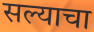
सल्याचा